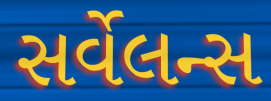
સર્વેલન્સ